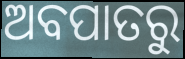
ଅବପାତରୁ